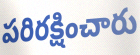
పరిరక్షించారు